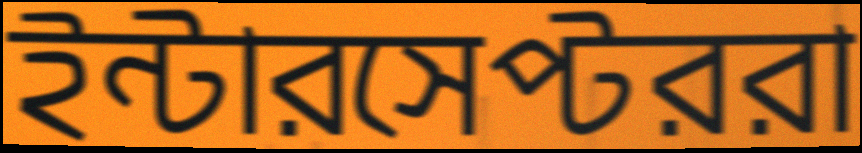
ইন্টারসেপ্টররা